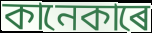
কানেকাৰে